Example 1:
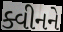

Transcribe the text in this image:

ક્વીનને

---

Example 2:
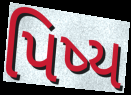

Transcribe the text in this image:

પિષ્ય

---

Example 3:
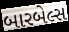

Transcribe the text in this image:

બારબેલ્સ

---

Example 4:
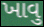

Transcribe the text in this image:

ખાવુ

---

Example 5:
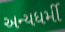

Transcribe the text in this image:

અન્યધર્મી